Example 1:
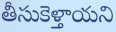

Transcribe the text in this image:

తీసుకెళ్తాయని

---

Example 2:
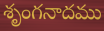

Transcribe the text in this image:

శృంగనాదము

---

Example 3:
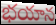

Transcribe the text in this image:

భయాన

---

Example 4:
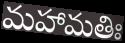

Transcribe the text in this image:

మహామతిః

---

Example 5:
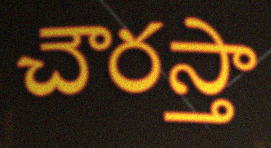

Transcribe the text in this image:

చౌరస్తా